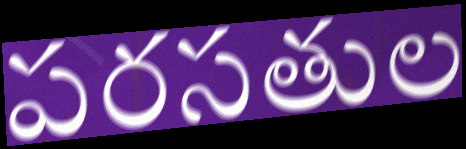
పరసతుల